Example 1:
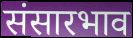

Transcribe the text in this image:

संसारभाव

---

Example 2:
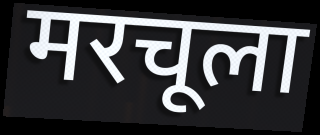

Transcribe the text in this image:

मरचूला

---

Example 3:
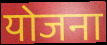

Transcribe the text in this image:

योजना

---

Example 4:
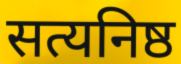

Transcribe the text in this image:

सत्यनिष्ठ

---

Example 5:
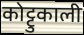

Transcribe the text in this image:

कोट्टुकाली